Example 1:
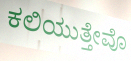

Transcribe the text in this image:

ಕಲಿಯುತ್ತೇವೊ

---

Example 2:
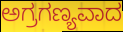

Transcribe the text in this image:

ಅಗ್ರಗಣ್ಯವಾದ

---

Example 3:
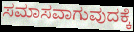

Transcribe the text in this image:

ಸಮಾಸವಾಗುವುದಕ್ಕೆ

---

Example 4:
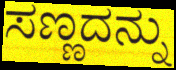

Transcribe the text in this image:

ಸಣ್ಣದನ್ನು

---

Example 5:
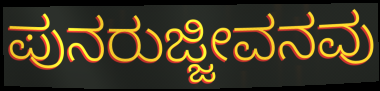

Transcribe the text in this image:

ಪುನರುಜ್ಜೀವನವು